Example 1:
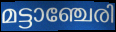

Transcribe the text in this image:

മട്ടാഞ്ചേരി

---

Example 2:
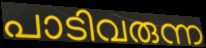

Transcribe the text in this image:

പാടിവരുന്ന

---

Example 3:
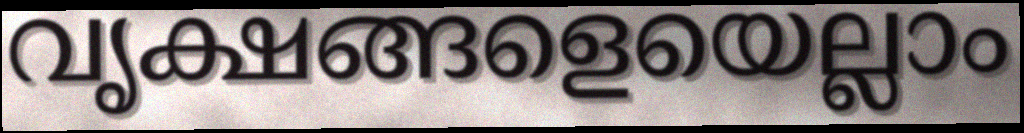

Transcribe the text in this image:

വൃക്ഷങ്ങളെയെല്ലാം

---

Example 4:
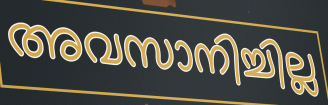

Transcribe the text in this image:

അവസാനിച്ചില്ല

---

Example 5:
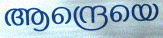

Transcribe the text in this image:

ആന്ദ്രെയെ